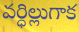
వర్ధిల్లుగాక